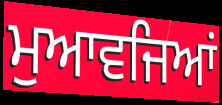
ਮੁਆਵਜਿਆਂ